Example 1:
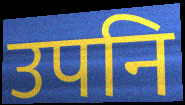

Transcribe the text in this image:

उपनि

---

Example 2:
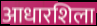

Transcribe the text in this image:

आधारशिला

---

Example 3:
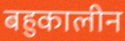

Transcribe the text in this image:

बहुकालीन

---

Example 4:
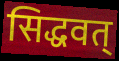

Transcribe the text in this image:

सिद्धवत्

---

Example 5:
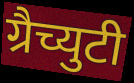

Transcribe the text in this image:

ग्रैच्युटी